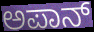
ಅಪಾನ್